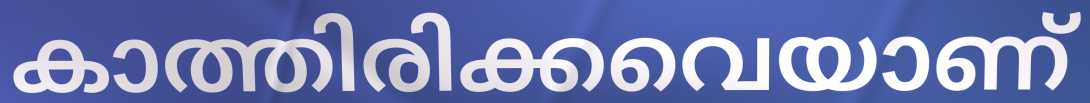
കാത്തിരിക്കവെയാണ്